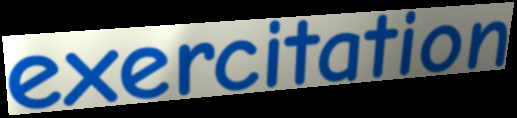
exercitation